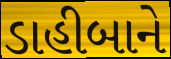
ડાહીબાને